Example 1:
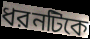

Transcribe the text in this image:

ধরনটিকে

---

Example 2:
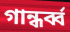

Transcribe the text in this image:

গান্ধর্ব্ব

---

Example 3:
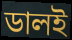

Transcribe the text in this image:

ডালই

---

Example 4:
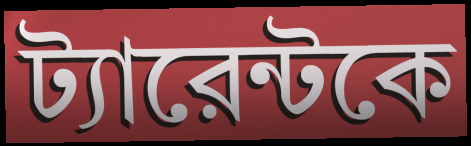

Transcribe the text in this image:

ট্যারেন্টকে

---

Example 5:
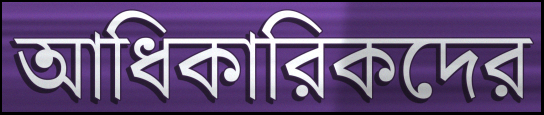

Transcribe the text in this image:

আধিকারিকদের